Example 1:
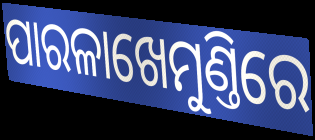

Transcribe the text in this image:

ପାରଳାଖେମୁଣ୍ତିରେ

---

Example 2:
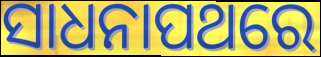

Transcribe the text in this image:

ସାଧନାପଥରେ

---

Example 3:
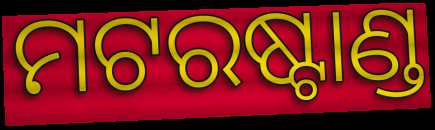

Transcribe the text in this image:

ମଟରଷ୍ଟାଣ୍ଡ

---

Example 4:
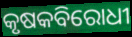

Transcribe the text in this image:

କୃଷକବିରୋଧୀ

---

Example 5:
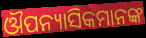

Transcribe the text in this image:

ଔପନ୍ୟାସିକମାନଙ୍କ